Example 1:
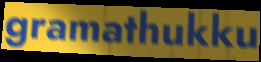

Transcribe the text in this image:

gramathukku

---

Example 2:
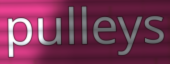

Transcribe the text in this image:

pulleys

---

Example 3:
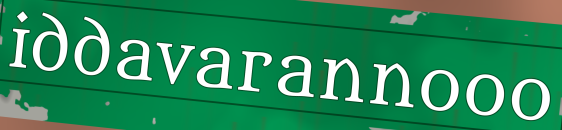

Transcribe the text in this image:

iddavarannooo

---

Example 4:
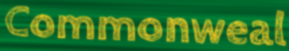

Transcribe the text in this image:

Commonweal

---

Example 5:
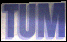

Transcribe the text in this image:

TUM